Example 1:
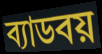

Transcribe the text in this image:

ব্যাডবয়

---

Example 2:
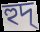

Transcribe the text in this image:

হুদ্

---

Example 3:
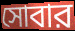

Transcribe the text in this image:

সোবার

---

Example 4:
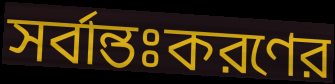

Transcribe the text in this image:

সর্বান্তঃকরণের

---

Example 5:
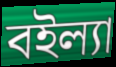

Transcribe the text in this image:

বইল্যা